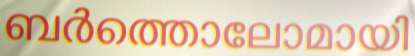
ബർത്തൊലോമായി